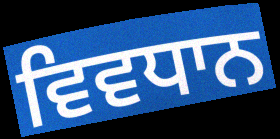
ਵਿਵਧਾਨ